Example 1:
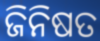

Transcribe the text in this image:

ଜିନିଷତ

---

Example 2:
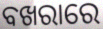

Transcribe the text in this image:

ବଖରାରେ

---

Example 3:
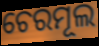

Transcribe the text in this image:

ଚେରମୂଲ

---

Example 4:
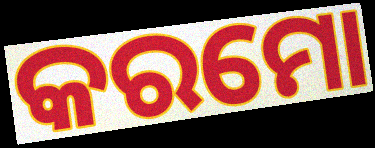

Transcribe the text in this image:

କରମୋ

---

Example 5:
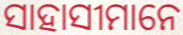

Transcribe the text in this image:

ସାହାସୀମାନେ